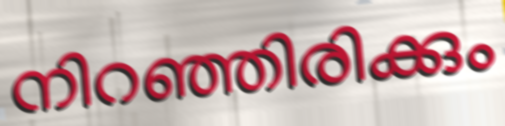
നിറഞ്ഞിരിക്കും